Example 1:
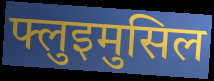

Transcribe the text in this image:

फ्लुइमुसिल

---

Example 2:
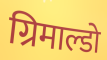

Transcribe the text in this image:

ग्रिमाल्डो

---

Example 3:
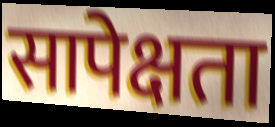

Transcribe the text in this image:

सापेक्षता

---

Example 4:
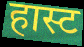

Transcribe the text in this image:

हास्ट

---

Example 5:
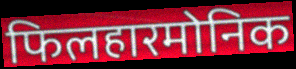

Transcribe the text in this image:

फिलहारमोनिक